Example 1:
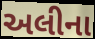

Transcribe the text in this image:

અલીના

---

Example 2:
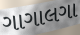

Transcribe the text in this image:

ગાગાલગા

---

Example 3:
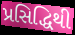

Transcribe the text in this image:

પ્રસિદ્ધિથી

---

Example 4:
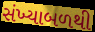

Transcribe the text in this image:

સંખ્યાબળથી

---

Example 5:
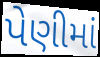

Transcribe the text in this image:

પેણીમાં